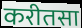
करीतसा